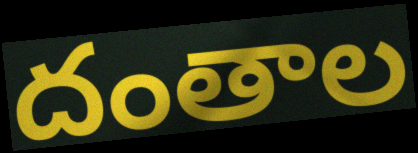
దంతాల